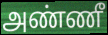
அண்ணீ